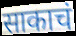
साकाचं